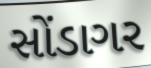
સોંડાગર